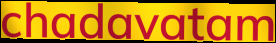
chadavatam